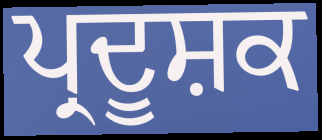
ਪ੍ਰਦੂਸ਼ਕ